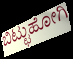
ಬಿಟ್ಟುಹೋಗಿ